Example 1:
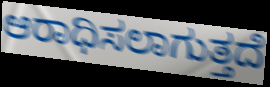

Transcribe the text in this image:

ಆರಾಧಿಸಲಾಗುತ್ತದೆ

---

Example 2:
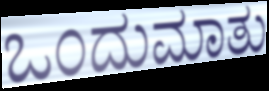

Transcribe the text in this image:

ಒಂದುಮಾತು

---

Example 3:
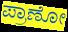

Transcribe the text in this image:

ಪ್ರಾಣೋ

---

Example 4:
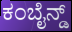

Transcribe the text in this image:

ಕಂಬೈನ್ಡ್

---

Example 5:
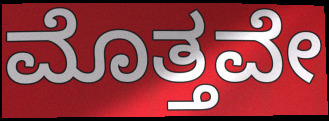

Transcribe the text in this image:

ಮೊತ್ತವೇ